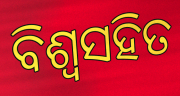
ବିଶ୍ଵସହିତ